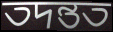
তদন্তত